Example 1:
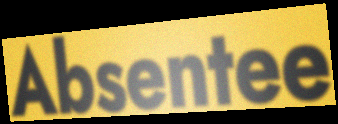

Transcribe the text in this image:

Absentee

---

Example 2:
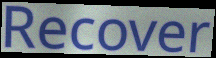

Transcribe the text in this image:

Recover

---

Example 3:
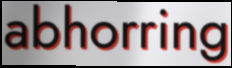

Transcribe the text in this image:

abhorring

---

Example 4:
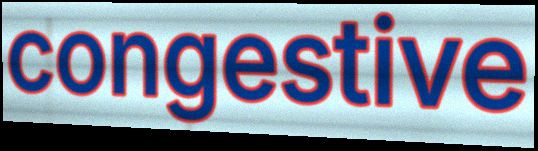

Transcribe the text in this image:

congestive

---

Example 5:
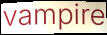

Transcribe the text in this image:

vampire